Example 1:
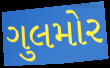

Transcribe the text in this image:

ગુલમોર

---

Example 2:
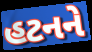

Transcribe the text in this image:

હટનને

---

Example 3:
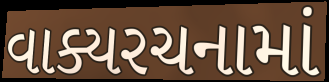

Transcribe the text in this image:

વાક્યરચનામાં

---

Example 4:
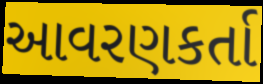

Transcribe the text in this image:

આવરણકર્તા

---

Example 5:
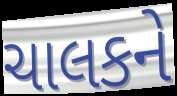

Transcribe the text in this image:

ચાલકને